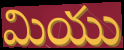
మియు